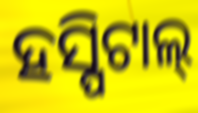
ହସ୍ପିଟାଲ୍